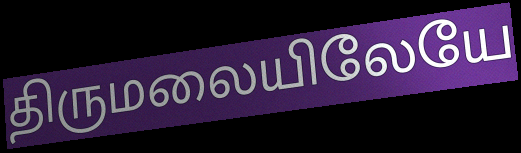
திருமலையிலேயே